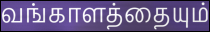
வங்காளத்தையும்